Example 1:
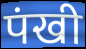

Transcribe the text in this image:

पंखी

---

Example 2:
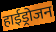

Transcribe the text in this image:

हाईड्रोजन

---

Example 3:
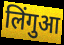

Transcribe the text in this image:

लिंगुआ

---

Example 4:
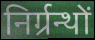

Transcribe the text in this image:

निर्ग्रन्थों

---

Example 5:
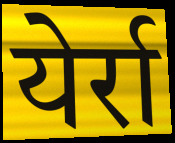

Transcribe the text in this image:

येर्रा